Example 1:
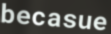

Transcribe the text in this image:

becasue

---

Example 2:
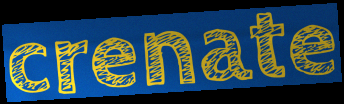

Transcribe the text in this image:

crenate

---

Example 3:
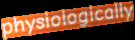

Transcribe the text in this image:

physiologically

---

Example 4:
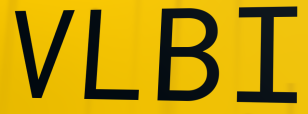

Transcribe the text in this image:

VLBI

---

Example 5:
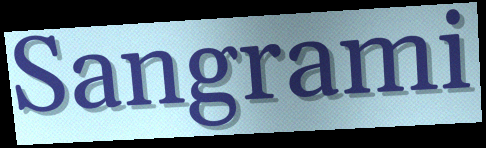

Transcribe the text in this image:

Sangrami